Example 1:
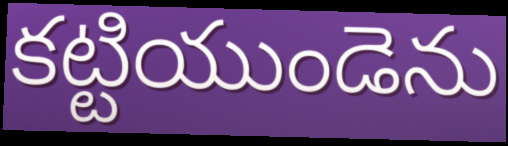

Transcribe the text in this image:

కట్టియుండెను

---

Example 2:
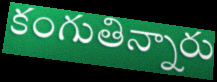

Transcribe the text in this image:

కంగుతిన్నారు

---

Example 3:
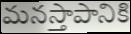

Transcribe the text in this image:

మనస్తాపానికి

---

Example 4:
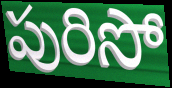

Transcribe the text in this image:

పురిసో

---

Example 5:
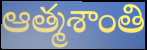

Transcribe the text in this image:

ఆత్మశాంతి